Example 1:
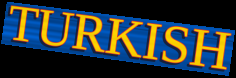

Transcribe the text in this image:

TURKISH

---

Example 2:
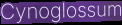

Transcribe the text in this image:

Cynoglossum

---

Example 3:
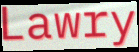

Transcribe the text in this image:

Lawry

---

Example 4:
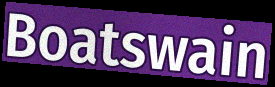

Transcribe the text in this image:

Boatswain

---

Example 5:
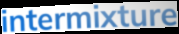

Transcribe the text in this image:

intermixture